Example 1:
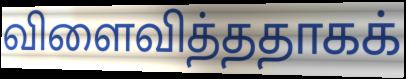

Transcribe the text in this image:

விளைவித்ததாகக்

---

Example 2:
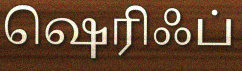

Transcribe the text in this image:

ஷெரிஃப்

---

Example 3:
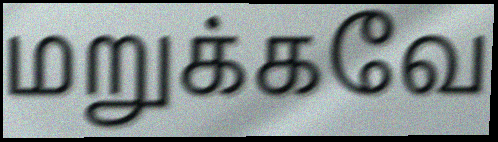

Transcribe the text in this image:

மறுக்கவே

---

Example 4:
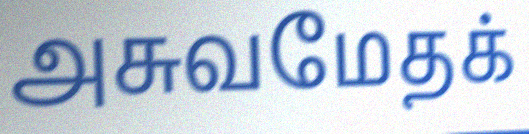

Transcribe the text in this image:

அசுவமேதக்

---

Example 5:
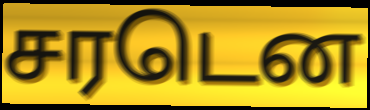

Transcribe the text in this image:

சரடென